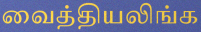
வைத்தியலிங்க